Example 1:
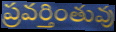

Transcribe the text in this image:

ప్రవర్తింతువు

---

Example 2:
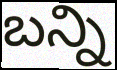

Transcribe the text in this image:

బన్ని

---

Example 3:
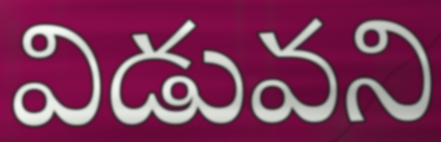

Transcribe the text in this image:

విడువని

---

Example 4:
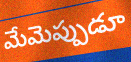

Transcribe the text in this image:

మేమెప్పుడూ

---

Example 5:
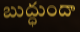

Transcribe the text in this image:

బుద్ధుందా